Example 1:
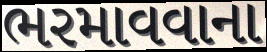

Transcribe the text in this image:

ભરમાવવાના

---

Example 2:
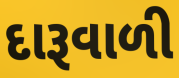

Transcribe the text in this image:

દારૂવાળી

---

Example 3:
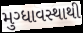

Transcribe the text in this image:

મુગ્ધાવસ્થાથી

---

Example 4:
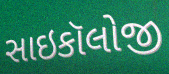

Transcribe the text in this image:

સાઇકૉલોજી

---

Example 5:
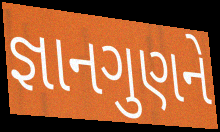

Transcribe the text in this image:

જ્ઞાનગુણને